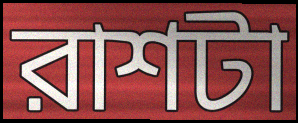
রাশটা